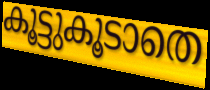
കൂട്ടുകൂടാതെ